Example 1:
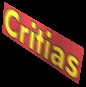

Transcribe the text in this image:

Critias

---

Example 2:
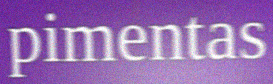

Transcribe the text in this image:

pimentas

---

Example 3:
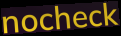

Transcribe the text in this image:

nocheck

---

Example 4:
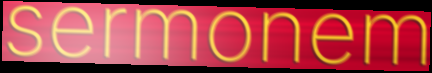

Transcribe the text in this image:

sermonem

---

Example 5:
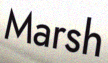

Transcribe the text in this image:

Marsh